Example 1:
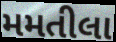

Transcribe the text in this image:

મમતીલા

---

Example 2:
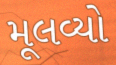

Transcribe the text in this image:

મૂલવ્યો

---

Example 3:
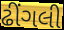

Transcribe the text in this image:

ઢીંગલી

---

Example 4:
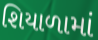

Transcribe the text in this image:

શિયાળામાં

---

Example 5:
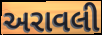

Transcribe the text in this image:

અરાવલી